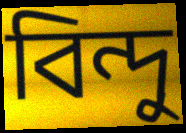
বিন্দু